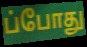
ப்போது